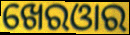
ଖେରଓାର